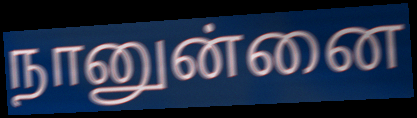
நானுன்னை